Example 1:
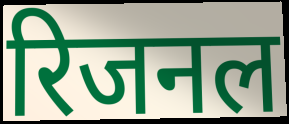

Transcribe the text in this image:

रिजनल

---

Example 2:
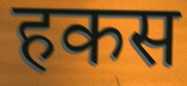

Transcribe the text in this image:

हकस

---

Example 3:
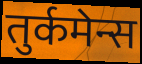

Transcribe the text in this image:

तुर्कमेन्स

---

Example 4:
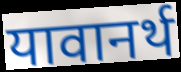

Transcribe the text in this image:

यावानर्थ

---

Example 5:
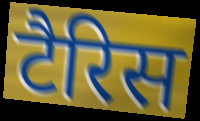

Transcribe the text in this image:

टैरिस